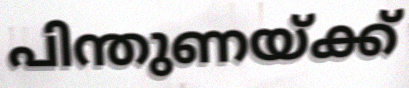
പിന്തുണയ്ക്ക്